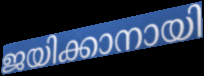
ജയിക്കാനായി